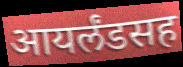
आयर्लंडसह